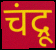
चंद्रू